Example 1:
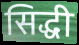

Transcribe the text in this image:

सिद्धी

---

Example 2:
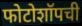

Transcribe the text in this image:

फोटोशॉपची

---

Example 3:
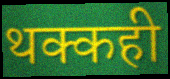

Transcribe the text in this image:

थक्कही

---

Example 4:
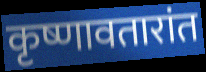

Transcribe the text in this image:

कृष्णावतारांत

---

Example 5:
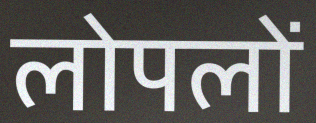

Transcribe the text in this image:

लोपलों